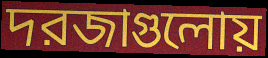
দরজাগুলোয়